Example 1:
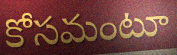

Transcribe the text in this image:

కోసమంటూ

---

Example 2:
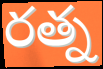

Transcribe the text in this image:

రత్న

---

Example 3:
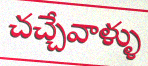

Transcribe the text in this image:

చచ్చేవాళ్ళు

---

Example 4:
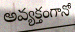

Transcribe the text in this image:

అవ్యక్తంగానో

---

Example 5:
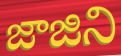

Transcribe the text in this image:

జాజిని